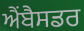
ਐਂਬੈਸਡਰ